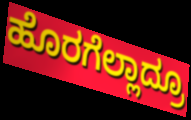
ಹೊರಗೆಲ್ಲಾದ್ರೂ